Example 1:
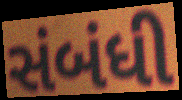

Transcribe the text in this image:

સંબંધી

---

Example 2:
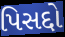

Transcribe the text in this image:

પિસદ્દો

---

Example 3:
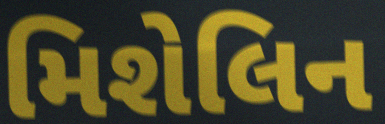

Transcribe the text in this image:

મિશેલિન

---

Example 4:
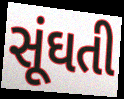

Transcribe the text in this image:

સૂંઘતી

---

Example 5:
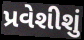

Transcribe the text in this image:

પ્રવેશીશું